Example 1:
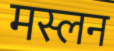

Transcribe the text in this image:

मस्लन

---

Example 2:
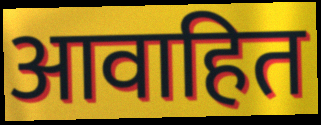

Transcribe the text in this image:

आवाहित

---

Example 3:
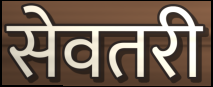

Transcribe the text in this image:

सेवतरी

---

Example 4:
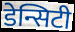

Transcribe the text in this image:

डेन्सिटी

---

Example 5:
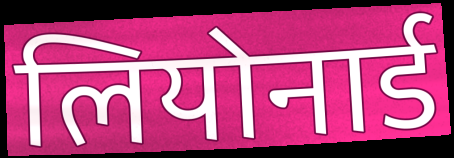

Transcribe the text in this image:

लियोनार्ड